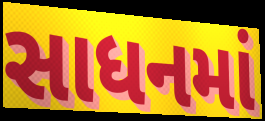
સાધનમાં